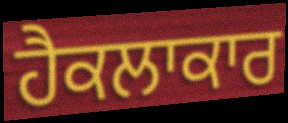
ਹੈਕਲਾਕਾਰ